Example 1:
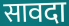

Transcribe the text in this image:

सावदा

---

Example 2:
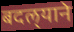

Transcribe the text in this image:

बदल्याने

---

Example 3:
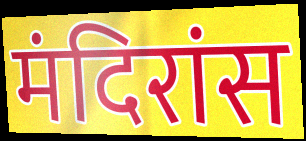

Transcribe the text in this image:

मंदिरांस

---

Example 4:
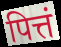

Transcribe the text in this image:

पित्तं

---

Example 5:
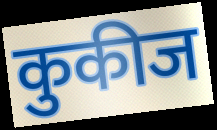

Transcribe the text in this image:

कुकीज